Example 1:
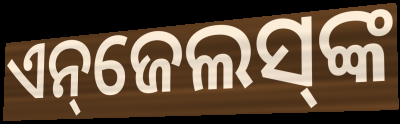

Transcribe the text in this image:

ଏନ୍‌ଜେଲସ୍‌ଙ୍କ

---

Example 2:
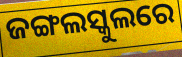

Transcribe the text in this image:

ଜଙ୍ଗଲସ୍କୁଲରେ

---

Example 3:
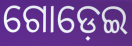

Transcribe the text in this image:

ଗୋଡ଼େଇ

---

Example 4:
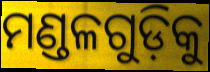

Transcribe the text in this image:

ମଣ୍ଡଳଗୁଡ଼ିକୁ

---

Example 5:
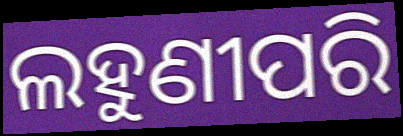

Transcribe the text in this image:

ଲହୁଣୀପରି